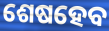
ଶେଷହେବ